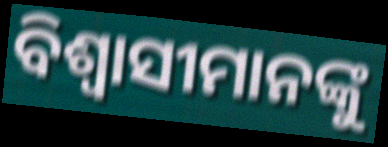
ବିଶ୍ୱାସୀମାନଙ୍କୁ